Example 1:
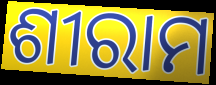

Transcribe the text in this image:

ଶୀରାମ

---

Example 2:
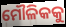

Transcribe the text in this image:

ମୌଳିକକୁ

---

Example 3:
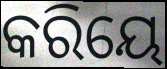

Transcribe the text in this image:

କରିୟେ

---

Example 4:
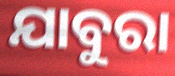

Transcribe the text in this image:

ଯାବୁରା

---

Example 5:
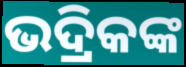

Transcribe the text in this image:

ଭଦ୍ରିକଙ୍କ